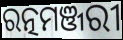
ରତ୍ନମଞ୍ଜରୀ